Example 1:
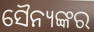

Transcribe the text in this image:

ସୈନ୍ୟଙ୍କର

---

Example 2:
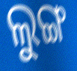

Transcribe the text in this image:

ଲୁଙ୍ଗ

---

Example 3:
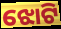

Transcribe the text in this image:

ଝୋଟି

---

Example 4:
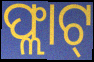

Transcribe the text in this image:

ଫ୍ଲାଟ୍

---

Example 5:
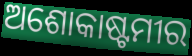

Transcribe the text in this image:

ଅଶୋକାଷ୍ଟମୀର